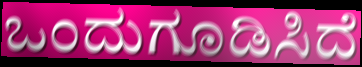
ಒಂದುಗೂಡಿಸಿದೆ